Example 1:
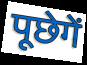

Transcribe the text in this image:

पूछेगें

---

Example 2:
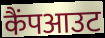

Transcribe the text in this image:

कैंपआउट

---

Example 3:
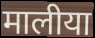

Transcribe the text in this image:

मालीया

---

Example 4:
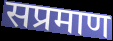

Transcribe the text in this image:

सप्रमाण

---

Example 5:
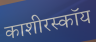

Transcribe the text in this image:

काशीरस्कॉय